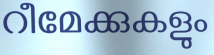
റീമേക്കുകളും